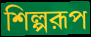
শিল্পরূপ